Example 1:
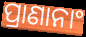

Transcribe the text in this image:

ପ୍ରାଣାନାଂ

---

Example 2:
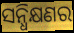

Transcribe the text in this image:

ସନ୍ଧିକ୍ଷଣର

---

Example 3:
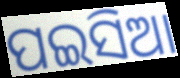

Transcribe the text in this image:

ପଇସିଆ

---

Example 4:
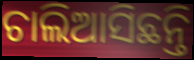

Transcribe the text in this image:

ଚାଲିଆସିଛନ୍ତି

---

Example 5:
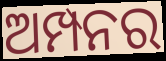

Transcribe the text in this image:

ଅମ୍ପନର